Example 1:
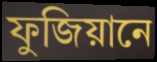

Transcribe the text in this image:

ফুজিয়ানে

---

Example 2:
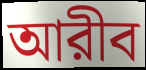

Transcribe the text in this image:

আরীব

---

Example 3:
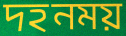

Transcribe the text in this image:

দহনময়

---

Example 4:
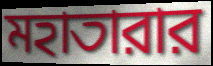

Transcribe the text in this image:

মহাতারার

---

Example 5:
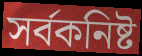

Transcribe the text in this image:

সর্বকনিষ্ট